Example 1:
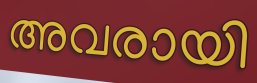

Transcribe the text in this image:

അവരായി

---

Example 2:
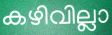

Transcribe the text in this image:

കഴിവില്ലാ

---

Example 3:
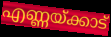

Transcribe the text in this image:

എണ്ണയ്ക്കാട്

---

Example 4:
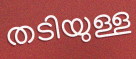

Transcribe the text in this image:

തടിയുള്ള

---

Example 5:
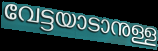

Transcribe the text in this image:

വേട്ടയാടാനുള്ള